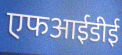
एफआईडीई